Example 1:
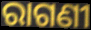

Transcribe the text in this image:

ରାଗଣୀ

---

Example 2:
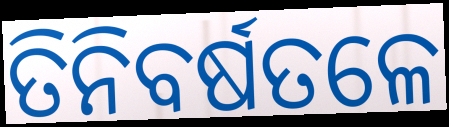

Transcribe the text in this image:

ତିନିବର୍ଷତଳେ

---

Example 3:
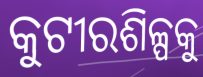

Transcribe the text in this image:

କୁଟୀରଶିଳ୍ପକୁ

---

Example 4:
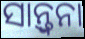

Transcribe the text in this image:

ସାନ୍ତ୍ୱନା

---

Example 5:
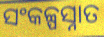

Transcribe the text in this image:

ସଂକଳ୍ପସ୍ନାତ